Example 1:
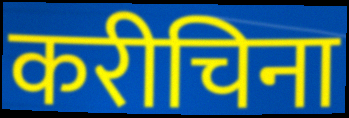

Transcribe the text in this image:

करीचिना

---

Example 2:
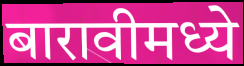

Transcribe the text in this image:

बारावीमध्ये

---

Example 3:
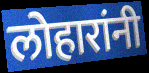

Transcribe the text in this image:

लोहारांनी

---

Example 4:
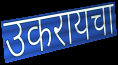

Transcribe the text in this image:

उकरायचा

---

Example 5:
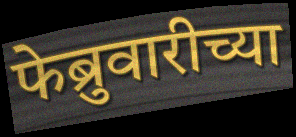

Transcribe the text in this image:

फेब्रुवारीच्या